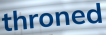
throned